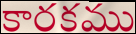
కారకము